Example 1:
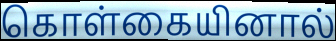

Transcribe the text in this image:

கொள்கையினால்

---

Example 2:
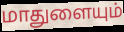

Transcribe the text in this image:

மாதுளையும்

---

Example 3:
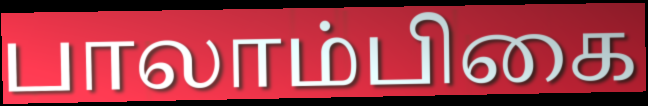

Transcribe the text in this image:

பாலாம்பிகை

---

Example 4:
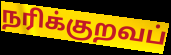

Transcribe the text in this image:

நரிக்குறவப்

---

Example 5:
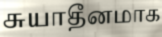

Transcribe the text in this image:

சுயாதீனமாக